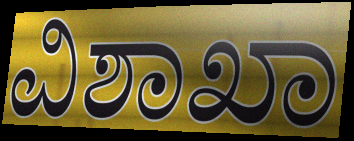
ವಿಶಾಖಾ